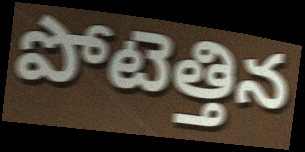
పోటెత్తిన